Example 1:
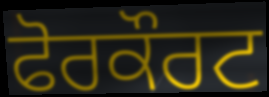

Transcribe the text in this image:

ਫੋਰਕੌਰਟ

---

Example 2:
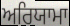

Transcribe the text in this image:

ਅਰਿਯਾਮਾ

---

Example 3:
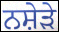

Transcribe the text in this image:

ਨਸ਼ੇੜੇ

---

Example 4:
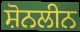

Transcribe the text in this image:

ਸ਼ੋਨਲੀਨ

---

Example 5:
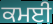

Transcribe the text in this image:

ਕਮਈ